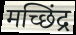
मच्छिंद्र